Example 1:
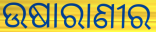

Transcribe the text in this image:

ଉଷାରାଣୀର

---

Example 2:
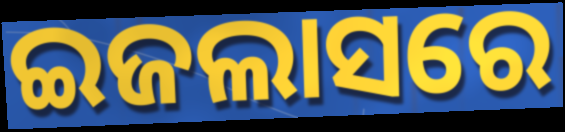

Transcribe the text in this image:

ଇଜଲାସରେ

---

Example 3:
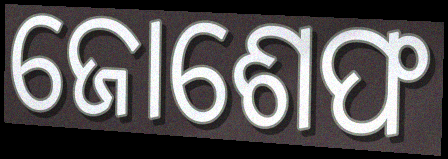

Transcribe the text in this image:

ଜୋଶେଫ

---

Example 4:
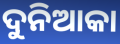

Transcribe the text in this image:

ଦୁନିଆକା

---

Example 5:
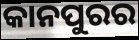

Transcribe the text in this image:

କାନପୁରର